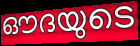
ഔദയുടെ